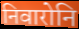
निवारोनि